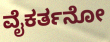
ವೈಕರ್ತನೋ